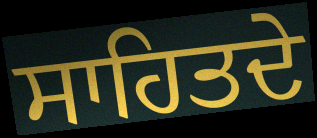
ਸਾਹਿਤਦੇ